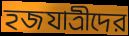
হজযাত্রীদের